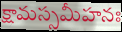
క్షామస్సమీహనః